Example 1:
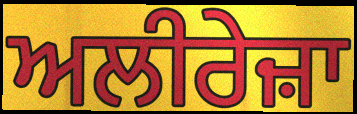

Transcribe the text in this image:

ਅਲੀਰੇਜ਼ਾ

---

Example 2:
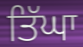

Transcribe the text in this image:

ਤਿੱਘਾ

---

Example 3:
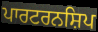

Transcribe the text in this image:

ਪਾਰਟਰਨਸ਼ਿਪ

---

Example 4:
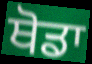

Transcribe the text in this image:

ਥੋਡਾ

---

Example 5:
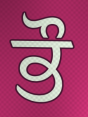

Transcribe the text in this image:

ਭੌ